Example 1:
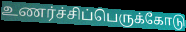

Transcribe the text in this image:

உணர்ச்சிப்பெருக்கோடு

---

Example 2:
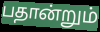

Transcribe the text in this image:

பதான்றும்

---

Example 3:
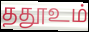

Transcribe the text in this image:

ததூஉம்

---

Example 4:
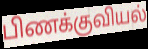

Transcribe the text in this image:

பிணக்குவியல்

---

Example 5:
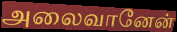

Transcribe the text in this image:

அலைவானேன்